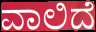
ವಾಲಿದೆ